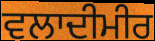
ਵਲਾਦੀਮੀਰ